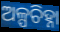
ଅଳ୍ପଚିହ୍ନା